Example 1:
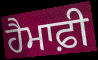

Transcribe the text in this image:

ਹੈਮਾਫ਼ੀ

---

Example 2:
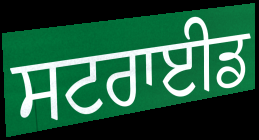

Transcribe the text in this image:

ਸਟਰਾਈਡ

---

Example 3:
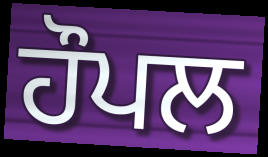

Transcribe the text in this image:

ਹੌਪਲ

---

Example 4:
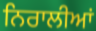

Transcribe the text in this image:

ਨਿਰਾਲੀਆਂ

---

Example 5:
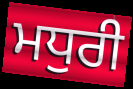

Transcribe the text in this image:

ਮਧੁਰੀ